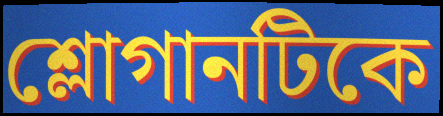
শ্লোগানটিকে